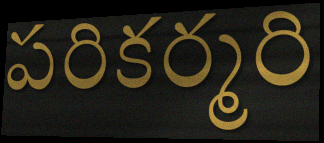
పరికర్మరి